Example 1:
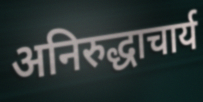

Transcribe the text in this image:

अनिरुद्धाचार्य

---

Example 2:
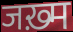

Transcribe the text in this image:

जख़्म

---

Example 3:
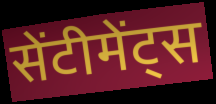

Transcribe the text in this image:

सेंटीमेंट्स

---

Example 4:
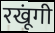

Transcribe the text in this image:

रखूंगी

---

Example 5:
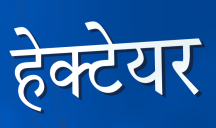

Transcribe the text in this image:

हेक्टेयर